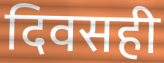
दिवसही